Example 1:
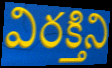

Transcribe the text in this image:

విరక్తిని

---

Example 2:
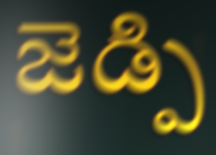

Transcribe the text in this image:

జెడ్పి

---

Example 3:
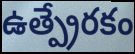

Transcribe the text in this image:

ఉత్ప్రేరకం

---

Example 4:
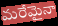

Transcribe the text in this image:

మరేమైనా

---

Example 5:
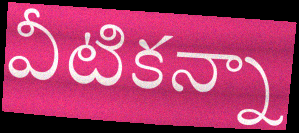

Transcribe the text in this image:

వీటికన్నా